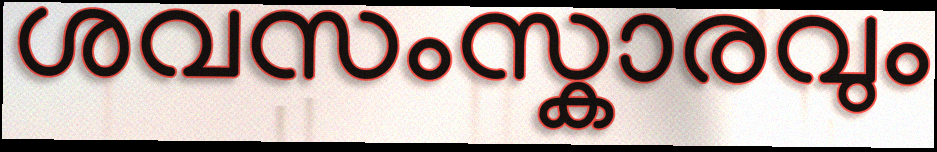
ശവസംസ്കാരവും